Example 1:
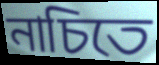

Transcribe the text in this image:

নাচিতে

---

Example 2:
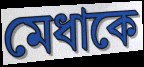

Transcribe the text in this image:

মেধাকে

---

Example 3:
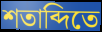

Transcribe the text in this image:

শতাব্দিতে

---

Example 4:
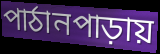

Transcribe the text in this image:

পাঠানপাড়ায়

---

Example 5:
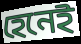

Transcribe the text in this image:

হেনেই